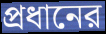
প্রধানের